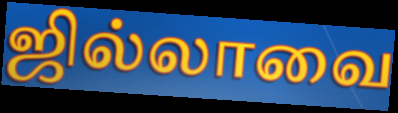
ஜில்லாவை